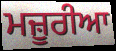
ਮਜ਼ੂਰੀਆ